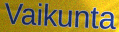
Vaikunta